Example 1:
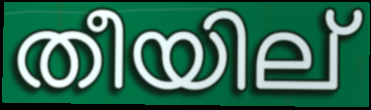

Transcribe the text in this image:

തീയില്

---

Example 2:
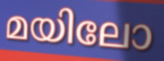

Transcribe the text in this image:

മയിലോ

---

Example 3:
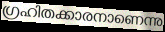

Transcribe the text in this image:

ഗ്രഹിതക്കാരനാണെന്നു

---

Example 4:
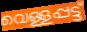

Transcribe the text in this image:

വെള്ളപ്പട്ട്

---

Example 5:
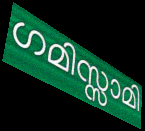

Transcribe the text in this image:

ഗമിസ്സാമി